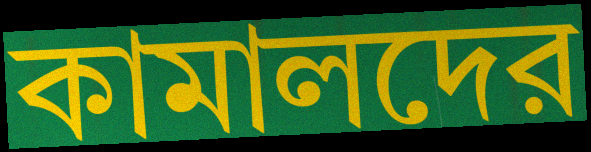
কামালদের